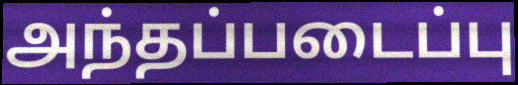
அந்தப்படைப்பு